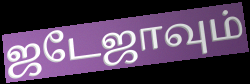
ஜடேஜாவும்